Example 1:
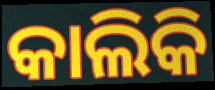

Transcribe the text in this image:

କାଲିକି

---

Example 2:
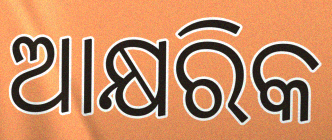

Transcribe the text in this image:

ଆକ୍ଷରିକ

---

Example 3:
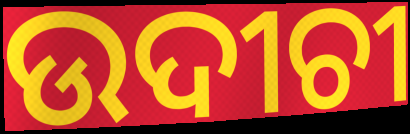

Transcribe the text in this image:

ଉଦୀଚୀ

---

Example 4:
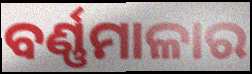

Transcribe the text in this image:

ବର୍ଣ୍ଣମାଳାର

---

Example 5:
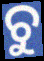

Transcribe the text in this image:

ଚୁ